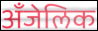
अँजेलिक